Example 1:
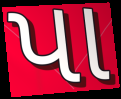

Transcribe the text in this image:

પા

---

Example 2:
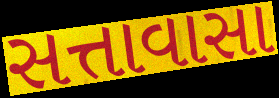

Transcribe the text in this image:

સત્તાવાસા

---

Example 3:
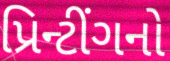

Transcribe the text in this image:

પ્રિન્ટીંગનો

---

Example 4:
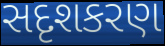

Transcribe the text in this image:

સદૃશકરણ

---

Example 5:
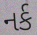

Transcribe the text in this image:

નર્ક